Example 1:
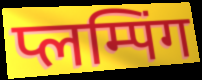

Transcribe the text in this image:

प्लम्पिंग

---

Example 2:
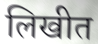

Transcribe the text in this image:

लिखीत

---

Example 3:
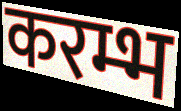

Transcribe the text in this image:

करम्भ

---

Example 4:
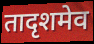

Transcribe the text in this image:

तादृशमेव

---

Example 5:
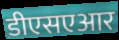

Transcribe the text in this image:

डीएसएआर